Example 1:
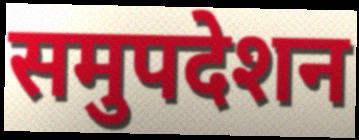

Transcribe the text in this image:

समुपदेशन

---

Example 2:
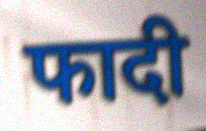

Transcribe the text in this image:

फादी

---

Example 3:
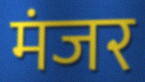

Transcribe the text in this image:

मंजर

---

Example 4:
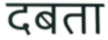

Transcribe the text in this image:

दबता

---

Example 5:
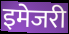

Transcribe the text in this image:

इमेजरी